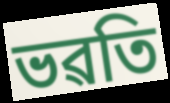
ভৱতি